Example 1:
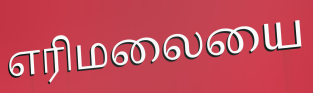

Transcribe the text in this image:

எரிமலையை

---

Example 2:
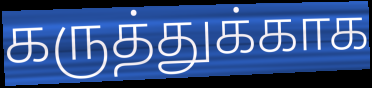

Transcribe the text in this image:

கருத்துக்காக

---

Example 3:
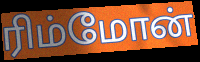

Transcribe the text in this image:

ரிம்மோன்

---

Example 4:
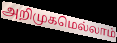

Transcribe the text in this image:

அறிமுகமெல்லாம்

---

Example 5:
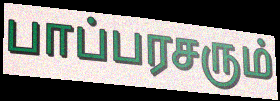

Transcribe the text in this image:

பாப்பரசரும்